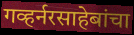
गव्हर्नरसाहेबांचा